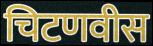
चिटणवीस